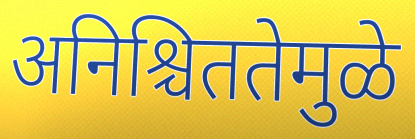
अनिश्चिततेमुळे